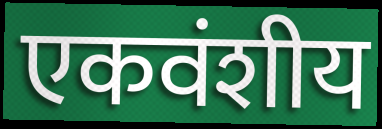
एकवंशीय